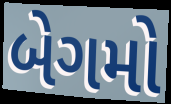
બેગમો